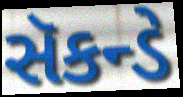
સૅકન્ડે